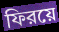
ফিরয়ে